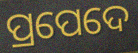
ପ୍ରପେଦେ